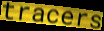
tracers